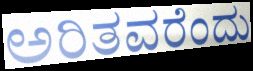
ಅರಿತವರೆಂದು